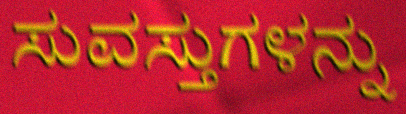
ಸುವಸ್ತುಗಳನ್ನು